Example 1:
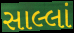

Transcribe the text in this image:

સાલ્લાં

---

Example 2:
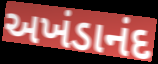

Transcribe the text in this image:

અખંડાનંદ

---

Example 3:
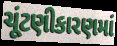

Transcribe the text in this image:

ચૂંટણીકારણમાં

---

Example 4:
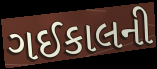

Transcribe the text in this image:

ગઈકાલની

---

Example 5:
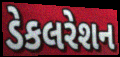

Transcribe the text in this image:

ડેકલરેશન